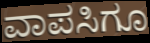
ವಾಪಸಿಗೂ